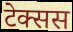
टेक्सस